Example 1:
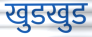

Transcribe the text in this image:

खुडखुड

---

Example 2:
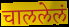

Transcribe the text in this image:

चाललेलं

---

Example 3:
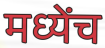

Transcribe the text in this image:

मध्येंच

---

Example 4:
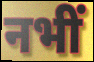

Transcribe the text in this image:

नभीं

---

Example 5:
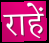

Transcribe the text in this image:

राहें